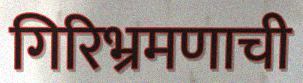
गिरिभ्रमणाची